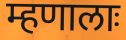
म्हणालाः